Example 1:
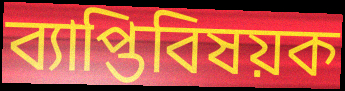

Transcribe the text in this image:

ব্যাপ্তিবিষয়ক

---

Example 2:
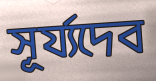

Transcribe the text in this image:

সূর্য্যদেব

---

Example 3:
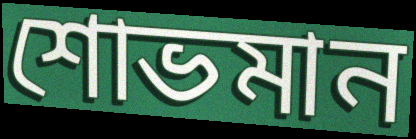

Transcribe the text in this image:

শোভমান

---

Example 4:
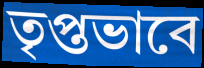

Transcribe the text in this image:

তৃপ্তভাবে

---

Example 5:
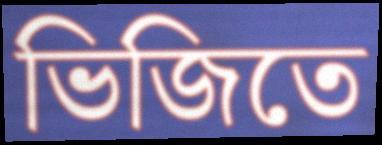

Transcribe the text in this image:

ভিজিতে